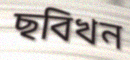
ছবিখন